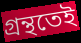
গ্ৰন্থতেই